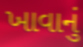
ખાવાનું